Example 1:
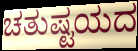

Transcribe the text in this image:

ಚತುಷ್ಟಯದ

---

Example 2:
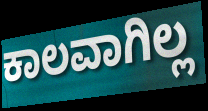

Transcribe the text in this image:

ಕಾಲವಾಗಿಲ್ಲ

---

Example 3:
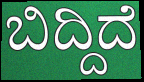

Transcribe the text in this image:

ಬಿದ್ದಿದೆ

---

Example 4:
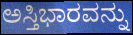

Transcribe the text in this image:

ಅಸ್ತಿಭಾರವನ್ನು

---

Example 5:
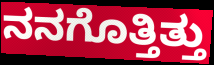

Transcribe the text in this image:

ನನಗೊತ್ತಿತ್ತು